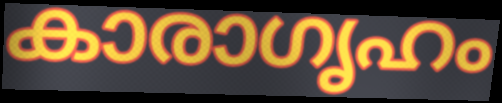
കാരാഗൃഹം